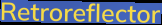
Retroreflector